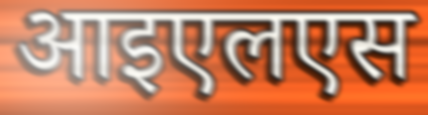
आइएलएस